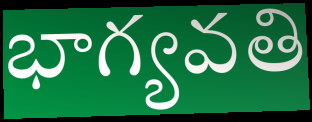
భాగ్యవతి